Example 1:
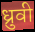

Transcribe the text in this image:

ध्रुवी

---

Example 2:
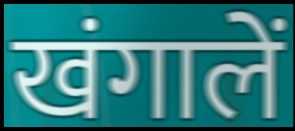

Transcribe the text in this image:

खंगालें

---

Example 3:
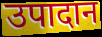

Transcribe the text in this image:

उपादान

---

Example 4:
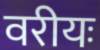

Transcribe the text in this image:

वरीयः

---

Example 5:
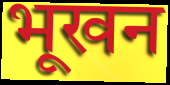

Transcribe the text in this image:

भूखन